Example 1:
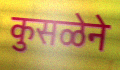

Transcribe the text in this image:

कुसळेने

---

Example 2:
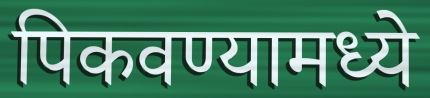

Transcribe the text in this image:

पिकवण्यामध्ये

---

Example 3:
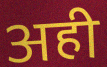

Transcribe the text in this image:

अही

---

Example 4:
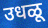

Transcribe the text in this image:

उधळू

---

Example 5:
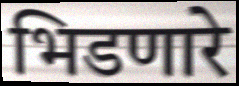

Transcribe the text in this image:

भिडणारे